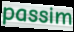
passim